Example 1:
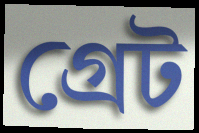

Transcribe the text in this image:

গ্ৰেট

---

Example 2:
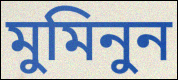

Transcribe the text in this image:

মুমিনুন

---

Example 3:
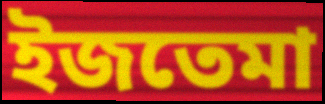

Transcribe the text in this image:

ইজতেমা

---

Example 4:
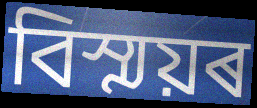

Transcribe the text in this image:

বিস্ময়ৰ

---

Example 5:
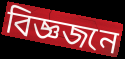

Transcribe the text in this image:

বিজ্ঞজনে